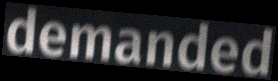
demanded